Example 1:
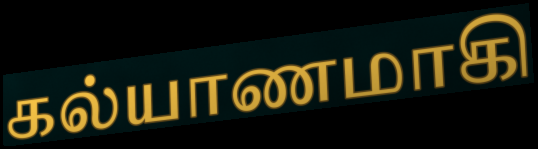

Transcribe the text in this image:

கல்யாணமாகி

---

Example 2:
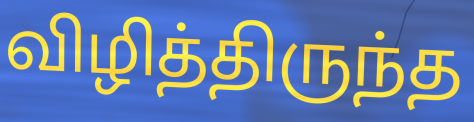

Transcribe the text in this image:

விழித்திருந்த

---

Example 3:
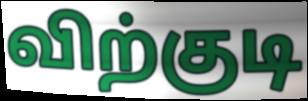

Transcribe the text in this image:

விற்குடி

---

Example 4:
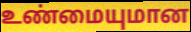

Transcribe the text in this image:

உண்மையுமான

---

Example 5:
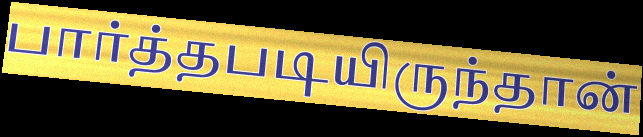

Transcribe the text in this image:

பார்த்தபடியிருந்தான்